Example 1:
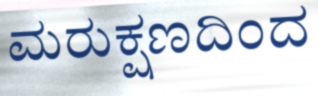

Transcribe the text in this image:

ಮರುಕ್ಷಣದಿಂದ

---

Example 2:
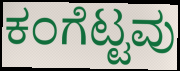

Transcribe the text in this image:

ಕಂಗೆಟ್ಟವು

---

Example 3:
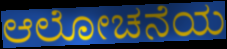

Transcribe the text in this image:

ಆಲೋಚನೆಯ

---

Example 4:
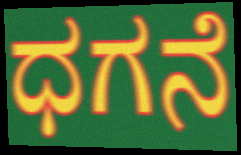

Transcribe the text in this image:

ಧಗನೆ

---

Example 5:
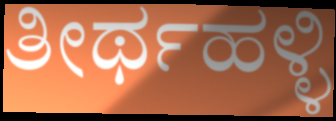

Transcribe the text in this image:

ತೀರ್ಥಹಳ್ಳಿ